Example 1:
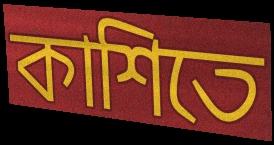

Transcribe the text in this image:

কাশিতে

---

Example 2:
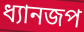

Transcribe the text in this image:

ধ্যানজপ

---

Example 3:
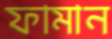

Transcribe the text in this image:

ফামান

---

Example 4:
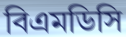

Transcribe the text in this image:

বিএমডিসি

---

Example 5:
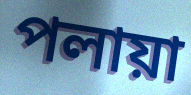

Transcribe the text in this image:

পলায়া